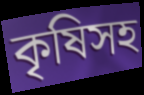
কৃষিসহ